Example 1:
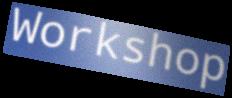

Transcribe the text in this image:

Workshop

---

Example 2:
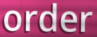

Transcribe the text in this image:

order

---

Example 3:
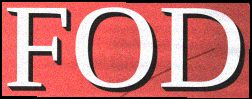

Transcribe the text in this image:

FOD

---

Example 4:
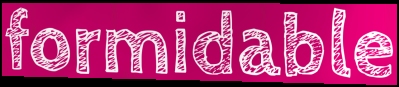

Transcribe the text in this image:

formidable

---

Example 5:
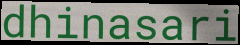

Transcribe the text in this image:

dhinasari